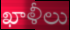
ఖాళీలు